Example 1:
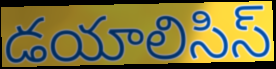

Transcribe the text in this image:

డయాలిసిస్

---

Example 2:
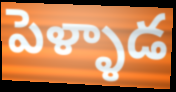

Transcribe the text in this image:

పెళ్ళాడ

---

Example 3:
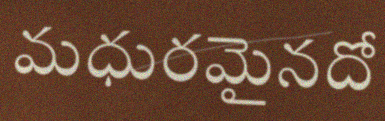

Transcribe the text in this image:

మధురమైనదో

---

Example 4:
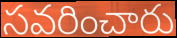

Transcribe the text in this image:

సవరించారు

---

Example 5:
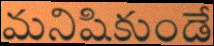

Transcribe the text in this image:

మనిషికుండే